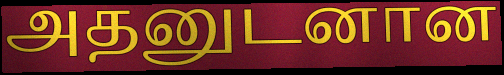
அதனுடனான